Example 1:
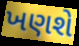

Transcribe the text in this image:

ખણશે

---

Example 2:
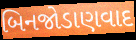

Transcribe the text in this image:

બિનજોડાણવાદ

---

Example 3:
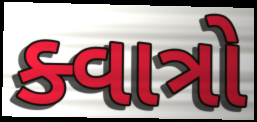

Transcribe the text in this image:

ક્વાત્રો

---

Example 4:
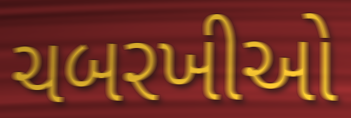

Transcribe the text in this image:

ચબરખીઓ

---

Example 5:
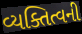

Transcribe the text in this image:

વ્યક્તિત્વની